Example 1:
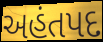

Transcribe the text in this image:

અહંતપદ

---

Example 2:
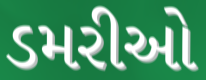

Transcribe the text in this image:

ડમરીઓ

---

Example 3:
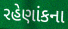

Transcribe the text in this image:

રહેણાંકના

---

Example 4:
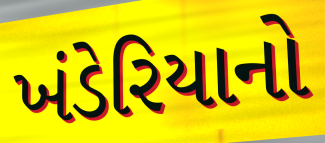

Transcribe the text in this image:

ખંડેરિયાનો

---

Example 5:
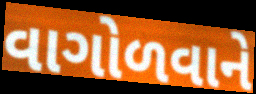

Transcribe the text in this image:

વાગોળવાને